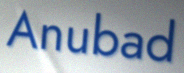
Anubad